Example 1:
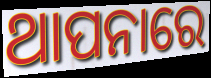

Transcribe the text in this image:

ଥାପନାରେ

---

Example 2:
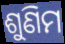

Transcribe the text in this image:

ଶୁଣିମ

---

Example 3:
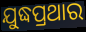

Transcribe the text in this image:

ଯୁଦ୍ଧପ୍ରଥାର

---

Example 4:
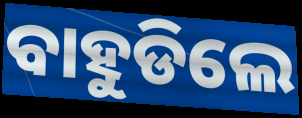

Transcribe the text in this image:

ବାହୁଡିଲେ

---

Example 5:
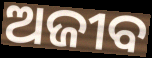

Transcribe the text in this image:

ଅଜୀବ